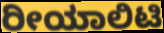
ರೀಯಾಲಿಟಿ